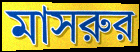
মাসরুর